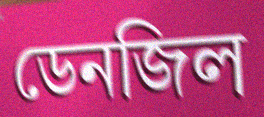
ডেনজিল